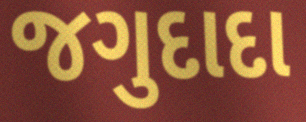
જગુદાદા